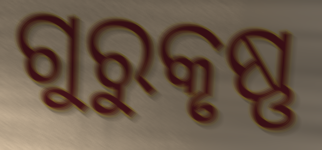
ଗୁରୁକୃଷ୍ଣ